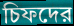
চিফদের